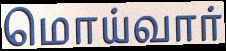
மொய்வார்